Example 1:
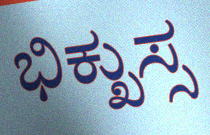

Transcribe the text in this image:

ಭಿಕ್ಖುಸ್ಸ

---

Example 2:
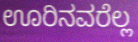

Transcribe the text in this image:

ಊರಿನವರೆಲ್ಲ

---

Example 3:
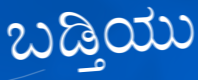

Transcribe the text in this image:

ಬಡ್ತಿಯು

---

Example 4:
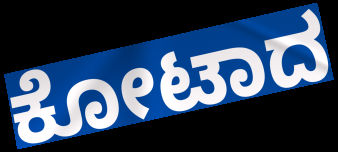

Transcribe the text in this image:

ಕೋಟಾದ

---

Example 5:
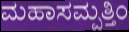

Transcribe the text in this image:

ಮಹಾಸಮ್ಪತ್ತಿಂ